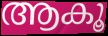
ആകൂ